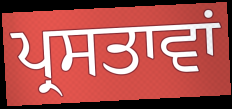
ਪ੍ਰਸਤਾਵਾਂ